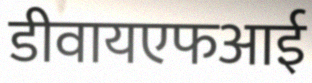
डीवायएफआई